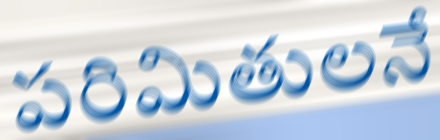
పరిమితులనే